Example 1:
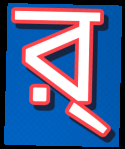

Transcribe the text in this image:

র্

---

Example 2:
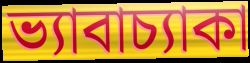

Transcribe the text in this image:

ভ্যাবাচ্যাকা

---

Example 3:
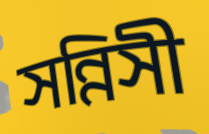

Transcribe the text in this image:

সন্নিসী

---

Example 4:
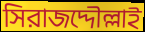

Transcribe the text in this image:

সিরাজদ্দৌল্লাই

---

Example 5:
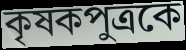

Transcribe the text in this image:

কৃষকপুত্রকে